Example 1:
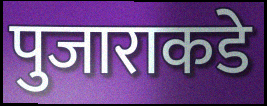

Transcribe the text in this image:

पुजाराकडे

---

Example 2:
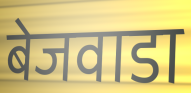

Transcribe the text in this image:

बेजवाडा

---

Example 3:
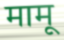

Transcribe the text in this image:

मामू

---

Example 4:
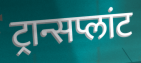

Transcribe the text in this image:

ट्रान्सप्लांट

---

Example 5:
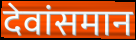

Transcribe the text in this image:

देवांसमान